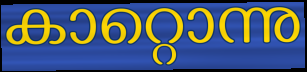
കാറ്റൊന്നു